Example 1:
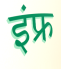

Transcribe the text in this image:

इंफ्र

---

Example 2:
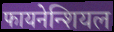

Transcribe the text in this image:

फायनेन्शियल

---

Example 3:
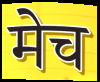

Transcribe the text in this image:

मेच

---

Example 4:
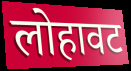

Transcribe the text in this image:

लोहावट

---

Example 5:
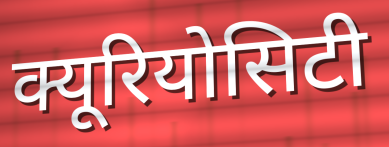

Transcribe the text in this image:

क्यूरियोसिटी